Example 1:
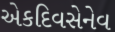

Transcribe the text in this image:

એકદિવસેનેવ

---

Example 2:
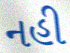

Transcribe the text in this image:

નહી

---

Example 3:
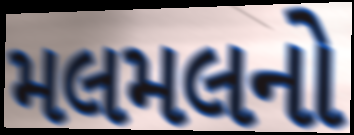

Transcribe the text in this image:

મલમલનો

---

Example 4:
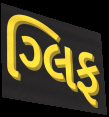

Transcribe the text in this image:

ગ્લિફ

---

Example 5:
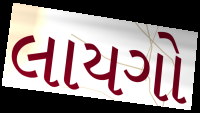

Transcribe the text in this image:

લાયગો